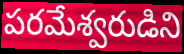
పరమేశ్వరుడిని